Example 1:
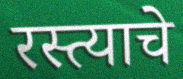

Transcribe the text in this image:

रस्त्याचे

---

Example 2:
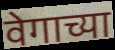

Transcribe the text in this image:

वेगाच्या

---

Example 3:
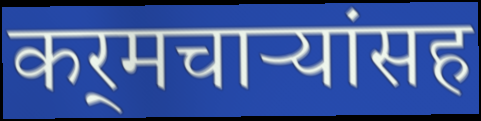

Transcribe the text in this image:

कर्मचाऱ्यांसह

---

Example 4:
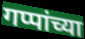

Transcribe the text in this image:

गप्पांच्या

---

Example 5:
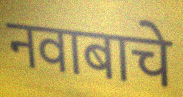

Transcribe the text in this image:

नवाबाचे